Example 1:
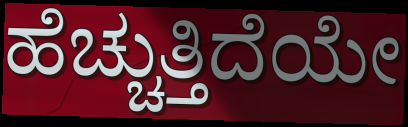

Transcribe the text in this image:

ಹೆಚ್ಚುತ್ತಿದೆಯೇ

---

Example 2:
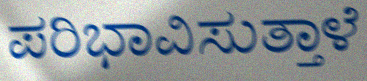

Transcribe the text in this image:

ಪರಿಭಾವಿಸುತ್ತಾಳೆ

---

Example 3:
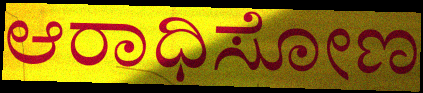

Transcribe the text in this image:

ಆರಾಧಿಸೋಣ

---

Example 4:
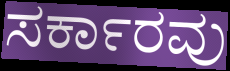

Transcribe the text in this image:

ಸರ್ಕಾರವು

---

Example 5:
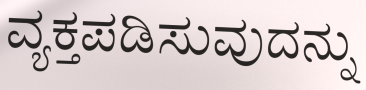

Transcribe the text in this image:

ವ್ಯಕ್ತಪಡಿಸುವುದನ್ನು